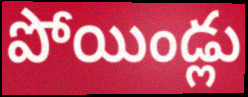
పోయిండ్లు